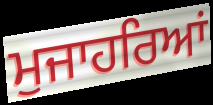
ਮੁਜਾਹਰਿਆਂ